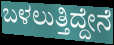
ಬಳಲುತ್ತಿದ್ದೇನೆ